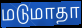
மடுமாதா